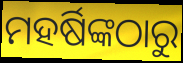
ମହର୍ଷିଙ୍କଠାରୁ